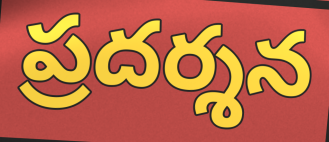
ప్రదర్శన